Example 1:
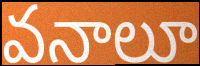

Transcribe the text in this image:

వనాలూ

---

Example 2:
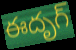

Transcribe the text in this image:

ఈదృగ్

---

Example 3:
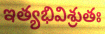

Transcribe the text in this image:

ఇత్యభివిశ్రుతః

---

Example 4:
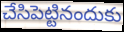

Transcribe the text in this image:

చేసిపెట్టినందుకు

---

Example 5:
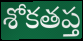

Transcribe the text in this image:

శోకతప్త